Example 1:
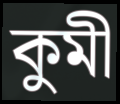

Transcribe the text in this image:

কুমী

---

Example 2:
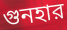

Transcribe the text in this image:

গুনহার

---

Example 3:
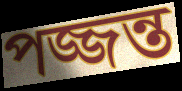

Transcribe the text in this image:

পজ্জন্ত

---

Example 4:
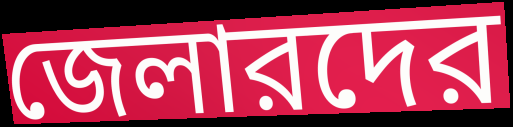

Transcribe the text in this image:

জেলারদের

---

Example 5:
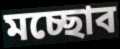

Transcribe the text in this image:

মচ্ছোব